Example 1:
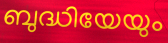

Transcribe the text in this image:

ബുദ്ധിയേയും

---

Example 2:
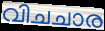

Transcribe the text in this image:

വിചചാര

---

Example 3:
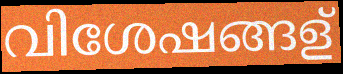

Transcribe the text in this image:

വിശേഷങ്ങള്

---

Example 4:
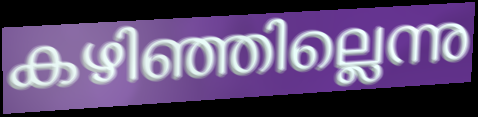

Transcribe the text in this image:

കഴിഞ്ഞില്ലെന്നു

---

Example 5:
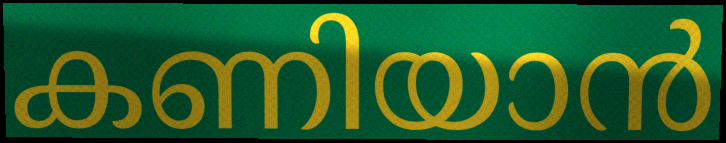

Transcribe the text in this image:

കണിയാൻ